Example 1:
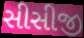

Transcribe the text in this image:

સીસીજી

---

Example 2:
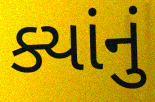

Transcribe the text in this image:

ક્યાંનું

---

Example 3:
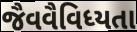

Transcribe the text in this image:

જૈવવૈવિધ્યતા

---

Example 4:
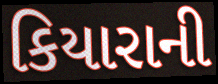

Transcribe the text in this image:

કિયારાની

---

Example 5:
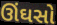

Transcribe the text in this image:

ઊંઘસો